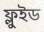
ফ্লুইড